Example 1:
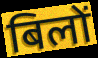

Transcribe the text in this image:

बिलों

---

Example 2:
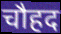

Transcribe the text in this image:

चौहद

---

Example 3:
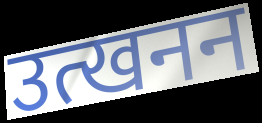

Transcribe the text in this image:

उत्‍खनन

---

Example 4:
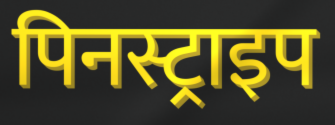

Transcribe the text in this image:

पिनस्ट्राइप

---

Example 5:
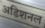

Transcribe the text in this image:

अडिशनल